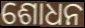
ଶୋଧନ